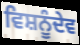
ਵਿਸ਼ਨੂੰਦੇਵ